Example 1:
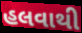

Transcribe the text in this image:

હલવાથી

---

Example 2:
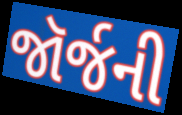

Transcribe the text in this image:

જૉર્જની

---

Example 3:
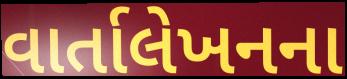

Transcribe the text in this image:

વાર્તાલેખનના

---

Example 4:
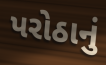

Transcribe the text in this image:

પરોઠાનું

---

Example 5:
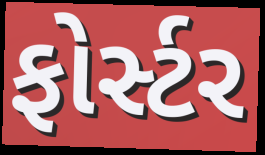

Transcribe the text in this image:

ફોર્સ્ટર